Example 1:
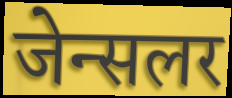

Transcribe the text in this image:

जेन्सलर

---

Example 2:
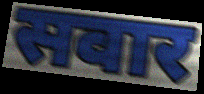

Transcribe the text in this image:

सवार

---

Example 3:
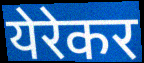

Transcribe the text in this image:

येरेकर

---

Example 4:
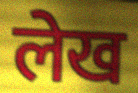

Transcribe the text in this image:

लेख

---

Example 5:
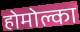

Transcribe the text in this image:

होमोल्का